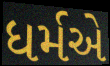
ધર્મએ